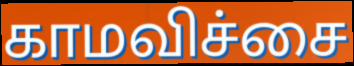
காமவிச்சை